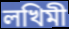
লখিমী